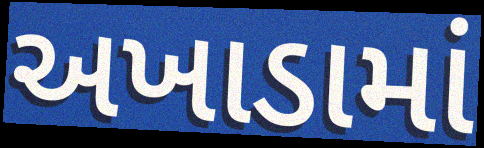
અખાડામાં